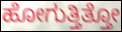
ಹೋಗುತ್ತಿತ್ತೋ